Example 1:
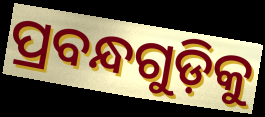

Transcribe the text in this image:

ପ୍ରବନ୍ଧଗୁଡ଼ିକୁ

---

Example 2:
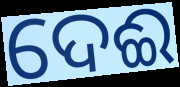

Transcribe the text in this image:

ଦେଈ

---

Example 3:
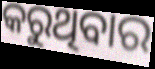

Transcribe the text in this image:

କରୁଥିବାର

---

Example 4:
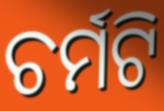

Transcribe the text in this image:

ଚର୍ମଟି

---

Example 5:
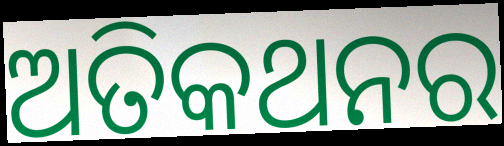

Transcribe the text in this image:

ଅତିକଥନର